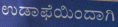
ಉಡಾಫೆಯಿಂದಾಗಿ